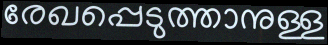
രേഖപ്പെടുത്താനുള്ള